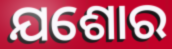
ଯଶୋର